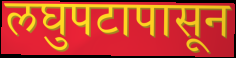
लघुपटापासून